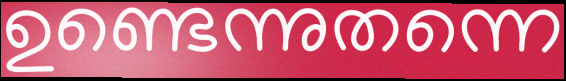
ഉണ്ടെന്നുതന്നെ